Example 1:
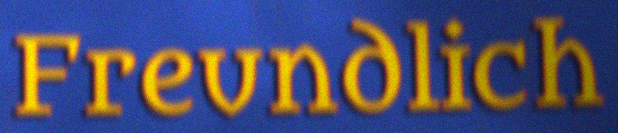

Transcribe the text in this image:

Freundlich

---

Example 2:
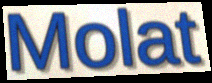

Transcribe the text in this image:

Molat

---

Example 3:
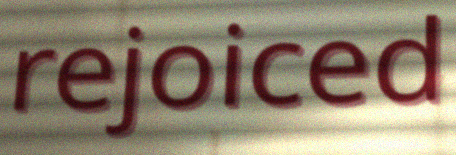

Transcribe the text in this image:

rejoiced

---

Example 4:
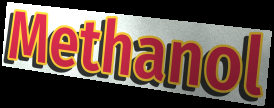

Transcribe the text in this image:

Methanol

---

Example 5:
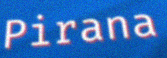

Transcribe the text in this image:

Pirana